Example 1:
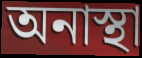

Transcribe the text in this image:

অনাস্থা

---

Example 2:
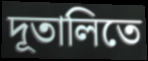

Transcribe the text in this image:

দূতালিতে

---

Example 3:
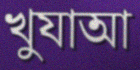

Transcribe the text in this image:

খুযাআ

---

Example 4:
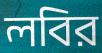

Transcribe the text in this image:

লবির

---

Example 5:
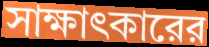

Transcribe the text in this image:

সাক্ষাৎকারের